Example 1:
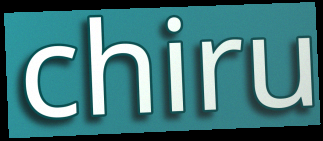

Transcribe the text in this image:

chiru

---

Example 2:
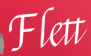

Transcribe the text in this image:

Flett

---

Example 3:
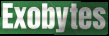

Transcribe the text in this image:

Exobytes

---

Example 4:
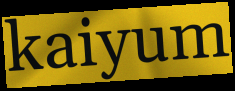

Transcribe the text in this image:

kaiyum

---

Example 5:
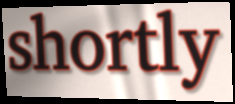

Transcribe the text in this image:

shortly